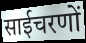
साईचरणों